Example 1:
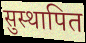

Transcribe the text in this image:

सुस्थापित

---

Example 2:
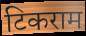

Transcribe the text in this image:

टिकराम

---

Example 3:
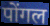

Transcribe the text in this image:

पोंगल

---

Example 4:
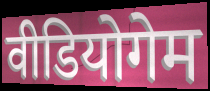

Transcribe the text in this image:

वीडियोगेम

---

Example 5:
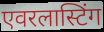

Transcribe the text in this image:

एवरलास्टिंग